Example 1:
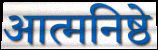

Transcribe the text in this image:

आत्मनिष्ठे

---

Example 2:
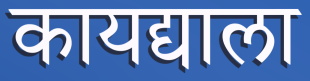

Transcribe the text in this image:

कायद्याला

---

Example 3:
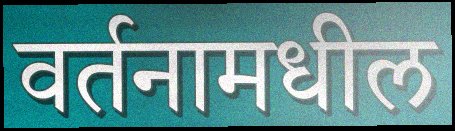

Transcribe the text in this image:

वर्तनामधील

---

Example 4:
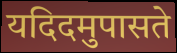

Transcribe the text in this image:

यदिदमुपासते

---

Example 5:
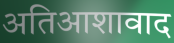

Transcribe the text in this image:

अतिआशावाद